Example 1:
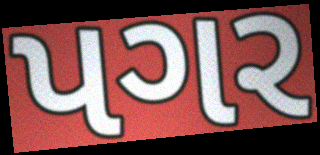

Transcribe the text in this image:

પગર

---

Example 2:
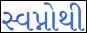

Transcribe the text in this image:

સ્વપ્નોથી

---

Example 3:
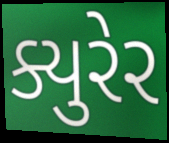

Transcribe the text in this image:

ક્યુરેર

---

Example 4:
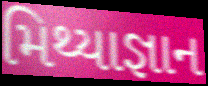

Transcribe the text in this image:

મિથ્યાજ્ઞાન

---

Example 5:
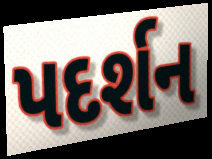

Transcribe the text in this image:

પદર્શન